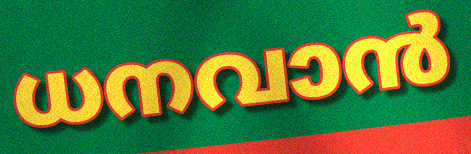
ധനവാൻ